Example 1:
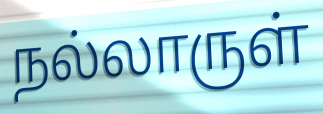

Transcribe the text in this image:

நல்லாருள்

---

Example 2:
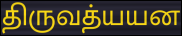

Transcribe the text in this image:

திருவத்யயன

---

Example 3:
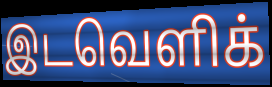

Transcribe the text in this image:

இடவெளிக்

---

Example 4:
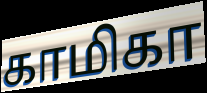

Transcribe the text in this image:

காமிகா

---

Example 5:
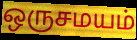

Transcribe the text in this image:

ஒருசமயம்